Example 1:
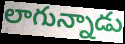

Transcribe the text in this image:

లాగున్నాడు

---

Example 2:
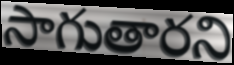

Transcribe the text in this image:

సాగుతారని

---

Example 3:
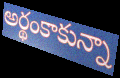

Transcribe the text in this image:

అర్థంకాకున్నా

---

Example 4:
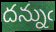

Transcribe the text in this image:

దన్నుఁ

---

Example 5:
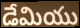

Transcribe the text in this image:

డేమియు